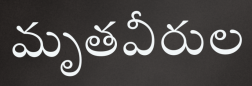
మృతవీరుల